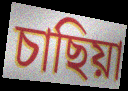
চাছিয়া